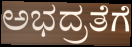
ಅಭದ್ರತೆಗೆ